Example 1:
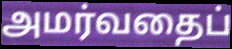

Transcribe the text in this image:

அமர்வதைப்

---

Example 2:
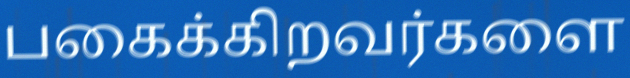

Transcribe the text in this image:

பகைக்கிறவர்களை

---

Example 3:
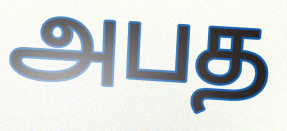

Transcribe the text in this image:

அபத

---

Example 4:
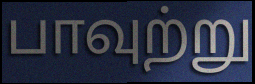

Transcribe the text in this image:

பாவுற்று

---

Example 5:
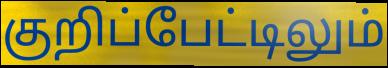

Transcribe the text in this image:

குறிப்பேட்டிலும்